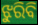
ଝୁରିବି